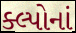
ક્લ્પોનાં